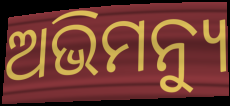
ଅଭିମନ୍ଯୁ